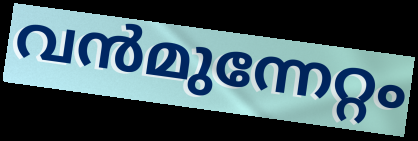
വൻമുന്നേറ്റം